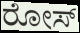
ರೋಸ್